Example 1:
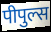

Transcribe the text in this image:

पीपुल्स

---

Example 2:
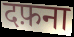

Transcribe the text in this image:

दफ़ना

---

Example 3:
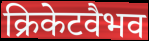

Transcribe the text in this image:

क्रिकेटवैभव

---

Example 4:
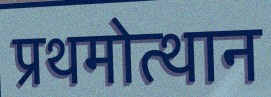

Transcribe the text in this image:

प्रथमोत्थान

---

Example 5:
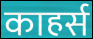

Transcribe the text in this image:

काहर्स